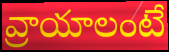
వ్రాయాలంటే